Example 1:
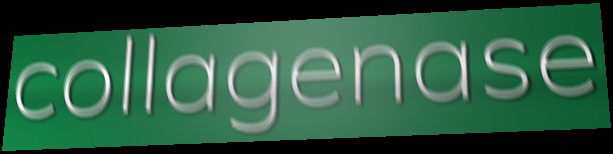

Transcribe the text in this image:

collagenase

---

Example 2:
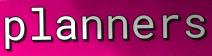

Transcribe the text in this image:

planners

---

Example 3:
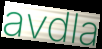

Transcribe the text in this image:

avdla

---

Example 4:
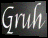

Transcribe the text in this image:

Gruh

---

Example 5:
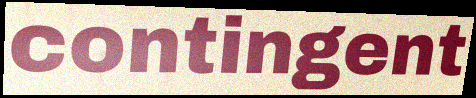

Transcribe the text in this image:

contingent